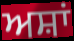
ਅਸ਼ਾਂ